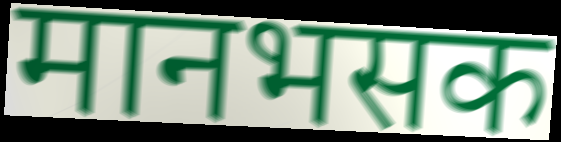
मानभसक